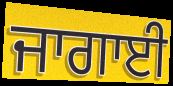
ਜਾਗਾਈ